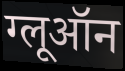
ग्लूऑन